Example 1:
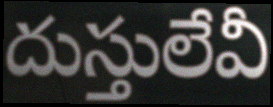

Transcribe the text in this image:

దుస్తులేవీ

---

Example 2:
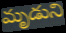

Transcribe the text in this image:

మృడుని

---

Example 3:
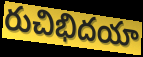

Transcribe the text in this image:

రుచిభిదయా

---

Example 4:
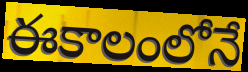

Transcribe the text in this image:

ఈకాలంలోనే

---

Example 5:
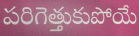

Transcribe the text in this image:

పరిగెత్తుకుపోయే